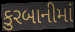
કુરબાનીમાં